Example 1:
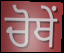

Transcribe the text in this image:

ਚੋਥੇਂ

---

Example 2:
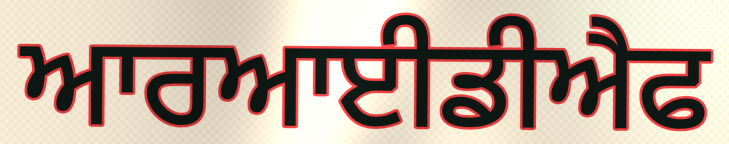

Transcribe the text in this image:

ਆਰਆਈਡੀਐਫ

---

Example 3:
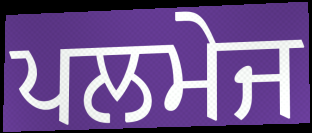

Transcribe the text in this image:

ਪਲਮੇਜ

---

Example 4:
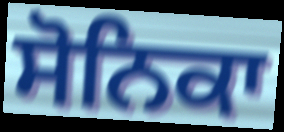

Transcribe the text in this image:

ਸੋਨਿਕਾ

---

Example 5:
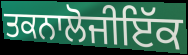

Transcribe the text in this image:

ਤਕਨਾਲੋਜੀਇੱਕ